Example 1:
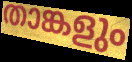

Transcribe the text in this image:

താങ്കളും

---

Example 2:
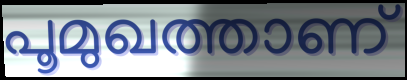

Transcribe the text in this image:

പൂമുഖത്താണ്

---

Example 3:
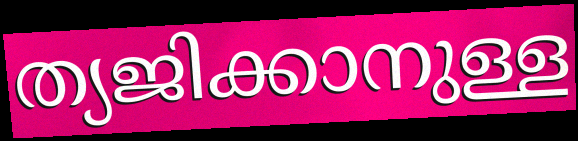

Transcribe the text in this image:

ത്യജിക്കാനുള്ള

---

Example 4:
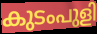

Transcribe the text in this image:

കുടംപുളി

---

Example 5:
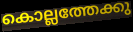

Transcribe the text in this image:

കൊല്ലത്തേക്കു